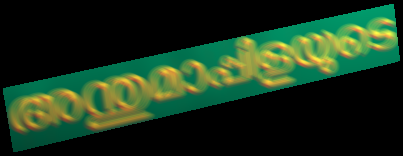
അന്തുമാപ്പിളയുടെ